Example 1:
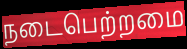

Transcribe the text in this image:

நடைபெற்றமை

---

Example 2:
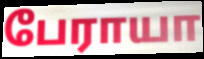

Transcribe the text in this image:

பேராயா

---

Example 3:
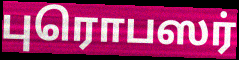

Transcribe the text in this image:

புரொபஸர்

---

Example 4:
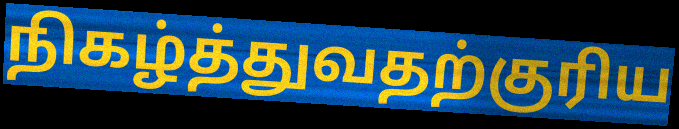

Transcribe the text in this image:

நிகழ்த்துவதற்குரிய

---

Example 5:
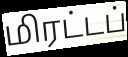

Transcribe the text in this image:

மிரட்டப்